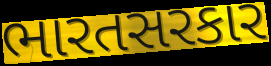
ભારતસરકાર